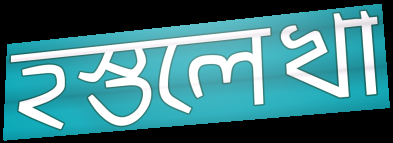
হস্তলেখা